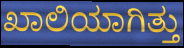
ಖಾಲಿಯಾಗಿತ್ತು